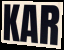
KAR